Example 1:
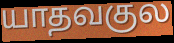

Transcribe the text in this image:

யாதவகுல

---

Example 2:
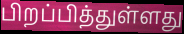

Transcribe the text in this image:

பிறப்பித்துள்ளது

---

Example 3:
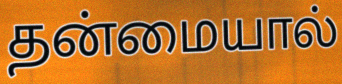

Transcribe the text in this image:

தன்மையால்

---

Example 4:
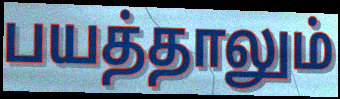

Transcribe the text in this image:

பயத்தாலும்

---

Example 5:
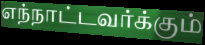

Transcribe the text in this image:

எந்நாட்டவர்க்கும்